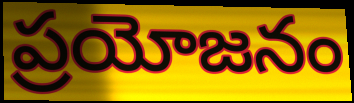
ప్రయోజనం